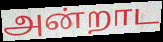
அன்றாட